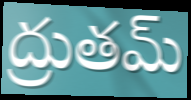
ద్రుతమ్